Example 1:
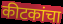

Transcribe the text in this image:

कीटकांचा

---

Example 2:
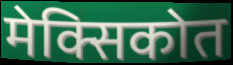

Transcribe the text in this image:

मेक्सिकोत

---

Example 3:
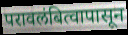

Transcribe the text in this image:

परावलंबित्वापासून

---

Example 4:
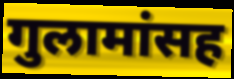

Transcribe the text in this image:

गुलामांसह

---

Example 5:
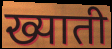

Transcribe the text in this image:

ख्याती